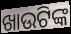
ଖାଉଟିଙ୍କ